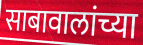
साबावालांच्या